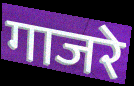
गाजरे